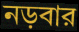
নড়বার